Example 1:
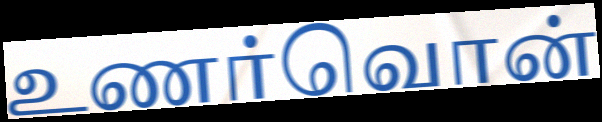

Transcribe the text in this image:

உணர்வொன்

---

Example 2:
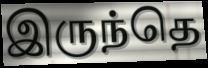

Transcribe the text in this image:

இருந்தெ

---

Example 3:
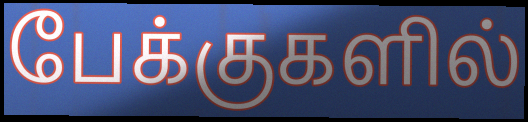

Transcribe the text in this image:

பேக்குகளில்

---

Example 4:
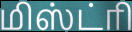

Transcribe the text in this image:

மிஸ்ட்ரி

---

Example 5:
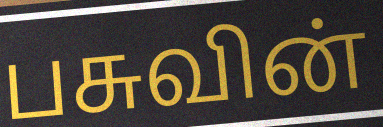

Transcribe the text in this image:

பசுவின்